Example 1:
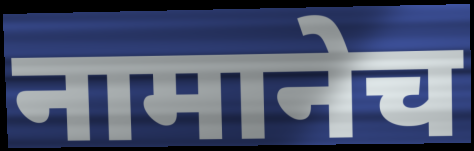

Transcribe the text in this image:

नामानेच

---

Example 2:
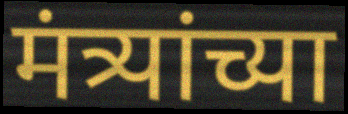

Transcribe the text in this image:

मंत्र्यांच्या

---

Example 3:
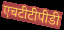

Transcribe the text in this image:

एचटीटीपीडी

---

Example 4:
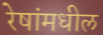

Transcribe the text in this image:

रेषांमधील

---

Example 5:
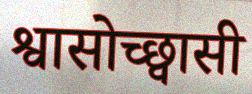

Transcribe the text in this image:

श्वासोच्छ्वासी